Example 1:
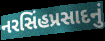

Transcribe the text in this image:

નરસિંહપ્રસાદનું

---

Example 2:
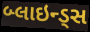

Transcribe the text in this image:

બ્લાઇન્ડ્સ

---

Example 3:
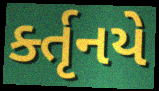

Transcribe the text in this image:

ર્ક્તૃનયે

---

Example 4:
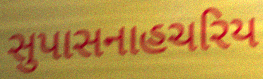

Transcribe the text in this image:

સુપાસનાહચરિય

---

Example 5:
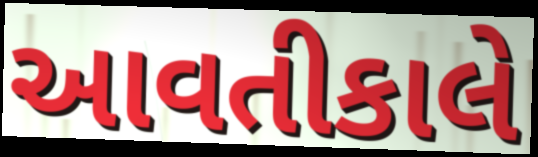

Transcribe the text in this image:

આવતીકાલે